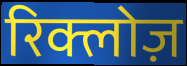
रिक्लोज़